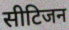
सीटिजन